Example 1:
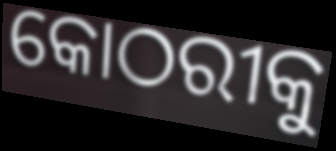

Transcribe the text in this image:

କୋଠରୀକୁ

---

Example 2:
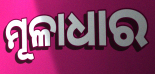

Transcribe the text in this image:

ମୂଳାଧାର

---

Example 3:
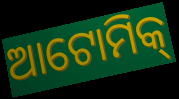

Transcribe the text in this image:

ଆଟୋମିକ୍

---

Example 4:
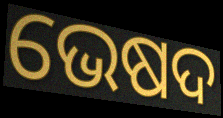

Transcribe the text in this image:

ଭେଷଦ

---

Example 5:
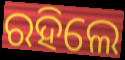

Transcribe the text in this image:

ରହିଲେ